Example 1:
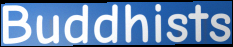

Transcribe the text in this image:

Buddhists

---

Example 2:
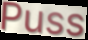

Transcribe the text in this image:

Puss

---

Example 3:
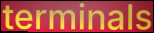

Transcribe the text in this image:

terminals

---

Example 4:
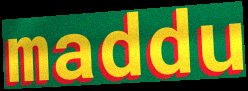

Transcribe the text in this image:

maddu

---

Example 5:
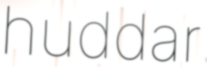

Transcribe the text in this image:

huddar